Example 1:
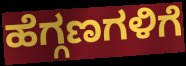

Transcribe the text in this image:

ಹೆಗ್ಗಣಗಳಿಗೆ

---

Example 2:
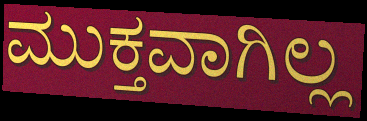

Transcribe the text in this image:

ಮುಕ್ತವಾಗಿಲ್ಲ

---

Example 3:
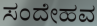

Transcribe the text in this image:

ಸಂದೇಹವ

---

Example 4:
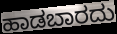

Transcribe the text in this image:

ಹಾಡಬಾರದು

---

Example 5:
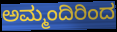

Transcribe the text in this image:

ಅಮ್ಮಂದಿರಿಂದ